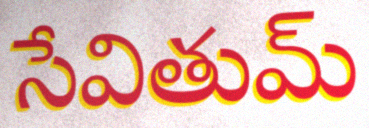
సేవితుమ్